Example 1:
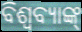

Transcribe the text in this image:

ବିଶ୍ଵବ୍ୟାଙ୍କ୍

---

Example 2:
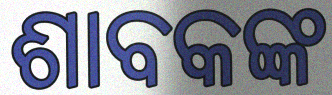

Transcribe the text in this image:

ଶାବକଙ୍କ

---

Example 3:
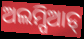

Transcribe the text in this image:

ଅଲମ୍ପିଆଡ୍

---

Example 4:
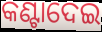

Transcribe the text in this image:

କଣ୍ଟାଦେଇ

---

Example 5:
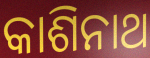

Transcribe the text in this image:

କାଶିନାଥ